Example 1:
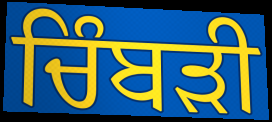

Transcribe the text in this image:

ਚਿੰਬੜੀ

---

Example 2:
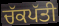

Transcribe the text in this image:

ਚੱਕਪੱਤੀ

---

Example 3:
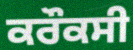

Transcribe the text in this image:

ਕਰੌਕਸੀ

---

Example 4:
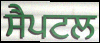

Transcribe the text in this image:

ਸੈਪਟਲ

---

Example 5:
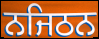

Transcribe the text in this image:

ਨਜਿਠਨ